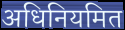
अधिनियमित